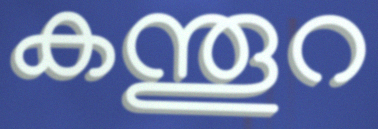
കന്തൂറ